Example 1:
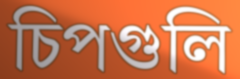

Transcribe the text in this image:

চিপগুলি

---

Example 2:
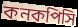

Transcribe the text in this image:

কনকপিসি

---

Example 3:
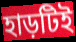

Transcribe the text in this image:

হাড়টিই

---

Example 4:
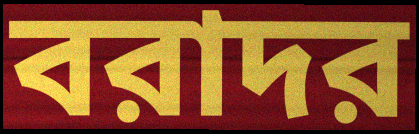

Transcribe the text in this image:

বরাদর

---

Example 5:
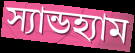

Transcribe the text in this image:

স্যান্ডহ্যাম